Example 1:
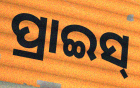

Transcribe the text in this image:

ପ୍ରାଇସ୍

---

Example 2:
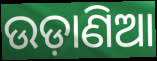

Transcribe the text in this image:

ଉଡ଼ାଣିଆ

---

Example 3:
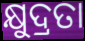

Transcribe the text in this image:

କ୍ଷୁଦ୍ରତା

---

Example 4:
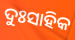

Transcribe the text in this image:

ଦୁଃସାହିକ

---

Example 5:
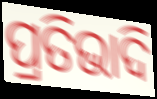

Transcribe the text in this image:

ପ୍ରତିଭାଦି